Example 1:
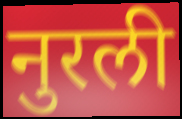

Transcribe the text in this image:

नुरली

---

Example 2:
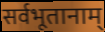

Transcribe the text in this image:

सर्वभूतानाम्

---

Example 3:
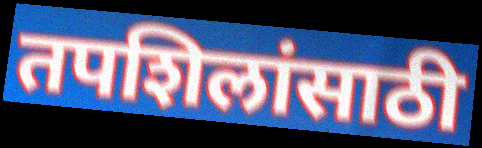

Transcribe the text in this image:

तपशिलांसाठी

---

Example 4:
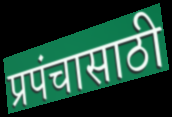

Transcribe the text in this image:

प्रपंचासाठी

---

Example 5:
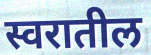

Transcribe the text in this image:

स्वरातील